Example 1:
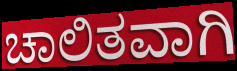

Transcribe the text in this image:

ಚಾಲಿತವಾಗಿ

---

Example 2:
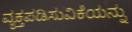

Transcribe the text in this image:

ವ್ಯಕ್ತಪಡಿಸುವಿಕೆಯನ್ನು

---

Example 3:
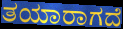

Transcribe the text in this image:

ತಯಾರಾಗದೆ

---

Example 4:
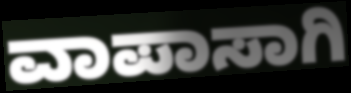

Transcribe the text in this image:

ವಾಪಾಸಾಗಿ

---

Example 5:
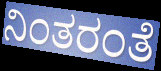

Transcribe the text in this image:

ನಿಂತರಂತೆ